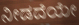
ನೀಡದೆಯೇ